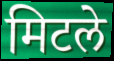
मिटले